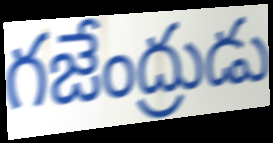
గజేంద్రుడు